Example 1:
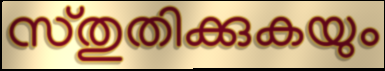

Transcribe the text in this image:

സ്തുതിക്കുകയും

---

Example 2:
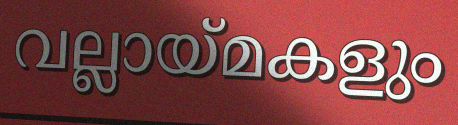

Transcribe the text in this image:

വല്ലായ്മകളും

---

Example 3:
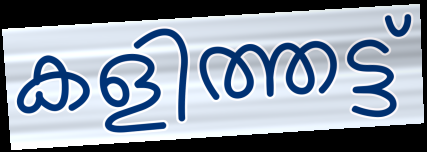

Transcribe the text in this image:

കളിത്തട്ട്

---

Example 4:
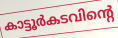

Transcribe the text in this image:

കാട്ടൂർകടവിന്റെ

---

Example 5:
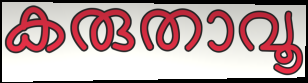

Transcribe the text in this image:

കരുതാവൂ